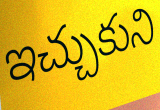
ఇచ్చుకుని